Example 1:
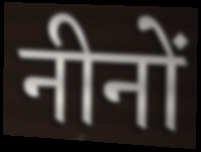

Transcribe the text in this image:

नीनों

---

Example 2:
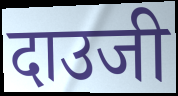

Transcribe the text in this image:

दाउजी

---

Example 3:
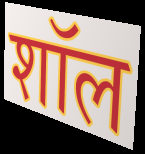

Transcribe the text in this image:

शॉल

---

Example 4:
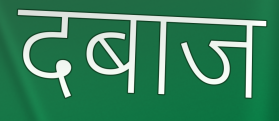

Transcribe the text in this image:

दबाज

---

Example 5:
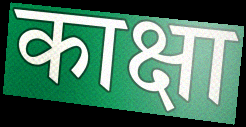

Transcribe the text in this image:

काक्षा